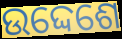
ଉଦ୍ଦେଶେ